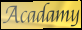
Acadamy